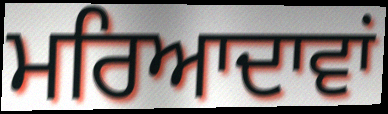
ਮਰਿਆਦਾਵਾਂ